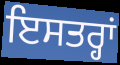
ਇਸਤਰ੍ਹਾਂ